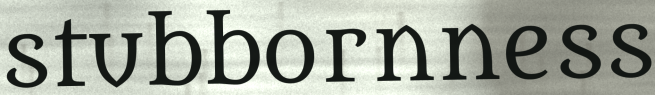
stubbornness